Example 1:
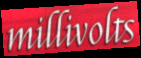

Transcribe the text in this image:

millivolts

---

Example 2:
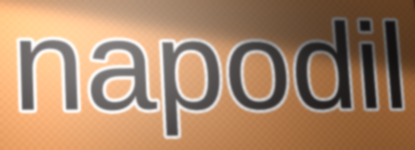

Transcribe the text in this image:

napodil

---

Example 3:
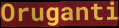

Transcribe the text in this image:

Oruganti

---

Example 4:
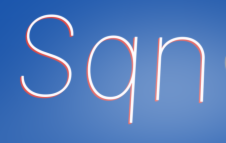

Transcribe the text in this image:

Sqn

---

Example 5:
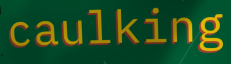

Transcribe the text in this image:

caulking